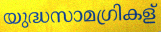
യുദ്ധസാമഗ്രികള്